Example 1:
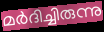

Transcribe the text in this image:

മർദിച്ചിരുന്നു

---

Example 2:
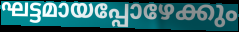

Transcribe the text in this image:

ഘട്ടമായപ്പോഴേക്കും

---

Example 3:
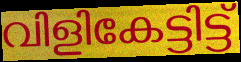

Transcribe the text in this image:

വിളികേട്ടിട്ട്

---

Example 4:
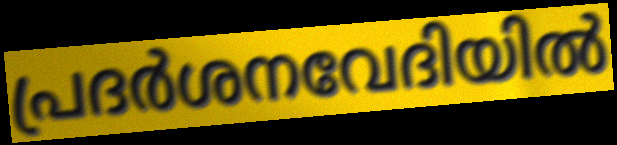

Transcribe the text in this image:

പ്രദർശനവേദിയിൽ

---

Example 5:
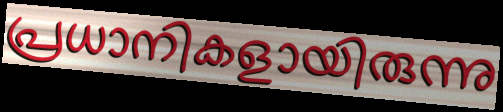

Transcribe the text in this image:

പ്രധാനികളായിരുന്നു